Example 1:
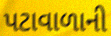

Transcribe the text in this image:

પટાવાળાની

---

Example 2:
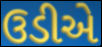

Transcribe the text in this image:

ઉડીએ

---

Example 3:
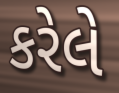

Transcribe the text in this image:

કરેલે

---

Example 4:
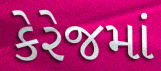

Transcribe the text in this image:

કેરેજમાં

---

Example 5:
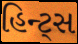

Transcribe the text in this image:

હિન્ટ્સ